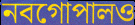
নবগোপালও